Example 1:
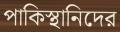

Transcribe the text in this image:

পাকিস্থানিদের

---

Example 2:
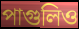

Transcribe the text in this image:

পাগুলিও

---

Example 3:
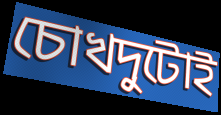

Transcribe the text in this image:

চোখদুটোই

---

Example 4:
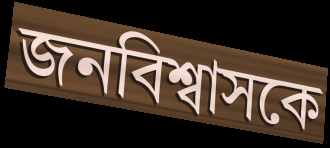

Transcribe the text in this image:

জনবিশ্বাসকে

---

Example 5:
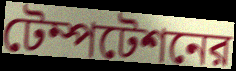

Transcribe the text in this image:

টেম্পটেশনের